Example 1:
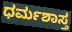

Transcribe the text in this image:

ಧರ್ಮಶಾಸ್ತ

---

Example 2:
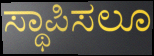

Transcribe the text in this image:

ಸ್ಥಾಪಿಸಲೂ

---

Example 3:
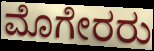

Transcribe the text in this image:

ಮೊಗೇರರು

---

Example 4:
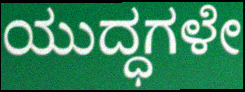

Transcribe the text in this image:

ಯುದ್ಧಗಳೇ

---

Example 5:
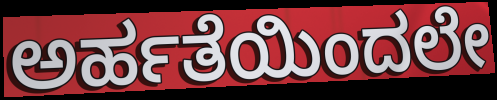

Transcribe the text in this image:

ಅರ್ಹತೆಯಿಂದಲೇ